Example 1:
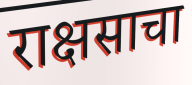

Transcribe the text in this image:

राक्षसाचा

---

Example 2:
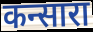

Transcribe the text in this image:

कन्सारा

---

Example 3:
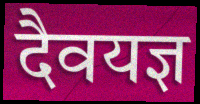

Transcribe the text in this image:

दैवयज्ञ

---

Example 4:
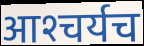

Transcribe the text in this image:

आश्चर्यच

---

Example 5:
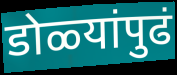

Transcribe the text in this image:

डोळ्यांपुढं